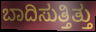
ಬಾದಿಸುತ್ತಿತ್ತು